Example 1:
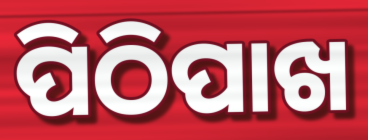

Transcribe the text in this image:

ପିଠିପାଖ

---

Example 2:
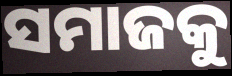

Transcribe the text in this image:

ସମାଜକୁ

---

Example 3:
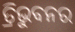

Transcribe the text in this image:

ତ୍ରିଭୁବନର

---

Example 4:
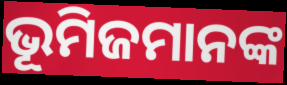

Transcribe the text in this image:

ଭୂମିଜମାନଙ୍କ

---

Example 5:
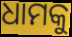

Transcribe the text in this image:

ଧାମକୁ